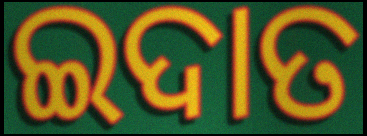
ଇଦାତ